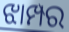
ଝାମ୍ପର